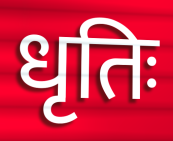
धृतिः